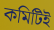
কমিটিই